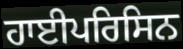
ਹਾਈਪਰਿਸਿਨ